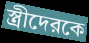
স্ত্রীদেরকে